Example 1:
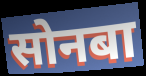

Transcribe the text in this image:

सोनबा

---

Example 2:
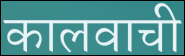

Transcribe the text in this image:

कालवाची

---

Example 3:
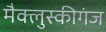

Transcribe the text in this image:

मैक्लुस्कीगंज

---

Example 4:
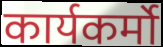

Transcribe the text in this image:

कार्यकर्मो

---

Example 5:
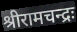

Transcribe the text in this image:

श्रीरामचन्द्रः